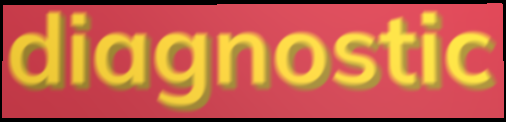
diagnostic